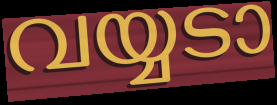
വയ്യടാ